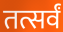
तत्सर्वं